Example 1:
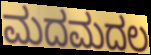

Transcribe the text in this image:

ಮದಮದಲ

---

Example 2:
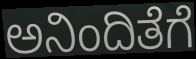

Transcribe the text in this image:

ಅನಿಂದಿತೆಗೆ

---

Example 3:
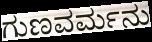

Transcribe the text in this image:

ಗುಣವರ್ಮನು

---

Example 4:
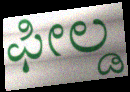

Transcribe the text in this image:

ಫೀಲ್ಡ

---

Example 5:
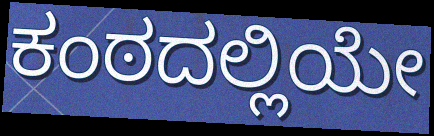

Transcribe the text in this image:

ಕಂಠದಲ್ಲಿಯೇ